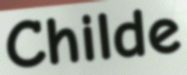
Childe